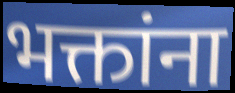
भक्तांना